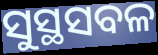
ସୁସ୍ଥସବଳ